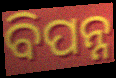
ବିପନ୍ନ